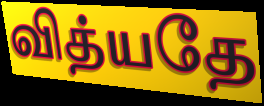
வித்யதே